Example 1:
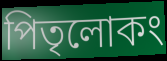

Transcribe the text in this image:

পিতৃলোকং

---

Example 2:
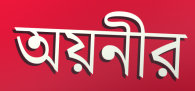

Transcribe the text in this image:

অয়নীর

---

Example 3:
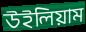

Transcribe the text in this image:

উইলিয়াম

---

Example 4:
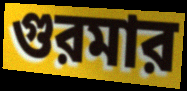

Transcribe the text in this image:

গুরমার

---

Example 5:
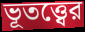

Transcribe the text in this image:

ভূতত্ত্বের